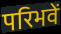
परिभवें